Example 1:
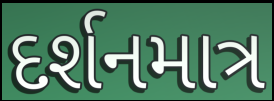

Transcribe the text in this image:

દર્શનમાત્ર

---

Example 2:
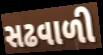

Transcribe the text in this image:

સઢવાળી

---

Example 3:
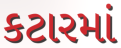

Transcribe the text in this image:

કટારમાં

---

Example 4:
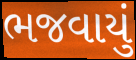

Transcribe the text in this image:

ભજવાયું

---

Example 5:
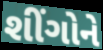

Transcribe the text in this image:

શીંગોને